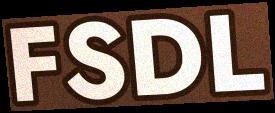
FSDL